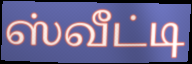
ஸ்வீட்டி